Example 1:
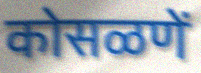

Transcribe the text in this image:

कोसळणें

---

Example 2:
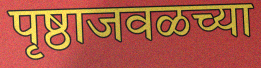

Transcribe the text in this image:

पृष्ठाजवळच्या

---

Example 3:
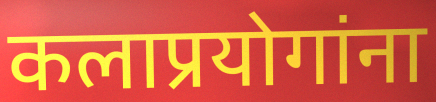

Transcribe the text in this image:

कलाप्रयोगांना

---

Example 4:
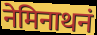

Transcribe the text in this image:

नेमिनाथनं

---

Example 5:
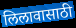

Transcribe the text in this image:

लिलावासाठी